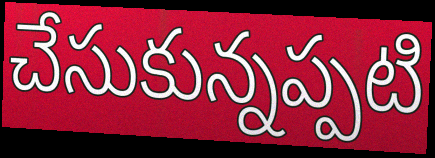
చేసుకున్నప్పటి